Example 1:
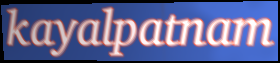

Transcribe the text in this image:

kayalpatnam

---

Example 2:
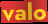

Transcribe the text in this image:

valo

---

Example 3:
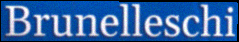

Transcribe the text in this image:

Brunelleschi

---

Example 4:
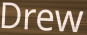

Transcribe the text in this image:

Drew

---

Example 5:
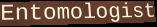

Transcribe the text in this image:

Entomologist